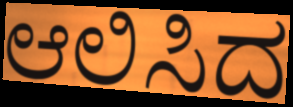
ಆಲಿಸಿದ